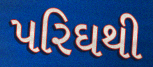
પરિઘથી